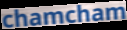
chamcham